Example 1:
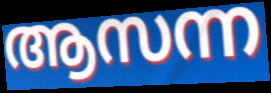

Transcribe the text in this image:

ആസന്ന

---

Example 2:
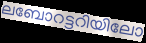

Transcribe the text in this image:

ലബോറട്ടറിയിലോ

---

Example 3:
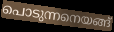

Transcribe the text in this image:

പൊടുന്നനെയങ്ങ്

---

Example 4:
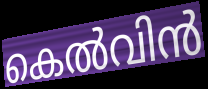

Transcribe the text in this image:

കെൽവിൻ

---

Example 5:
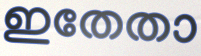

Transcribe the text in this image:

ഇതേതാ